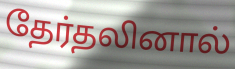
தேர்தலினால்